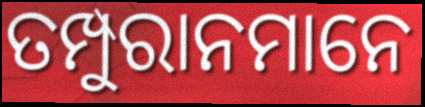
ତମ୍ପୁରାନମାନେ